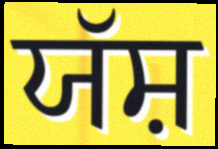
ਯੱਸ਼